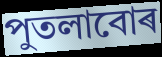
পুতলাবোৰ